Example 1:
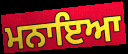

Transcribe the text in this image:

ਮਨਾਇਆ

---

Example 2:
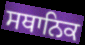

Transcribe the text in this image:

ਸਥਾਨਿਕ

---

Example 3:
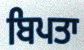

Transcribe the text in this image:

ਬਿਪਤਾ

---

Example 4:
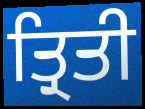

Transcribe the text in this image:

ਤ੍ਰਿਤੀ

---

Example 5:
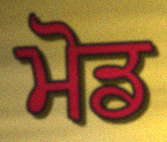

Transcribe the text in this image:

ਮੋਡ